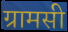
ग्रामसी